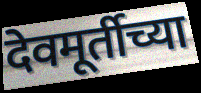
देवमूर्तीच्या